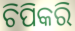
ଚିପିକରି